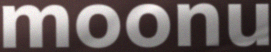
moonu